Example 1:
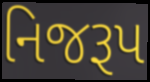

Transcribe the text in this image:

નિજરૂપ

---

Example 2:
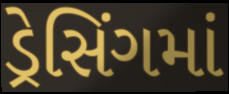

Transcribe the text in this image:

ડ્રેસિંગમાં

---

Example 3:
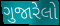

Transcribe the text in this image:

ગુજારેલો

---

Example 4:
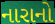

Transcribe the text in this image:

નારાનો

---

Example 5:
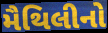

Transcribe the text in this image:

મૈથિલીનો